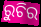
ରୁଚିର